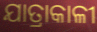
ଯାତ୍ରାକାଳୀ